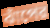
ঝাঁপের